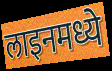
लाइनमध्ये